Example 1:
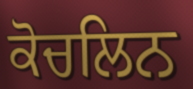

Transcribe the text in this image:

ਕੋਚਲਿਨ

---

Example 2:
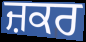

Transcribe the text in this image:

ਜ਼ਕਰ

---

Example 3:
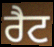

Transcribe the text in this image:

ਰੈਟ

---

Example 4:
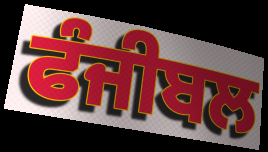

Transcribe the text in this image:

ਫੰਜੀਬਲ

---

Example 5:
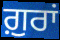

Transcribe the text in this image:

ਗ਼ੁਰਾਂ